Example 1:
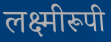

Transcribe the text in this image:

लक्ष्मीरूपी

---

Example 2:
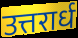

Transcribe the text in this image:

उत्तरार्ध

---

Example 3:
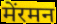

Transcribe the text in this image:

मेंरमन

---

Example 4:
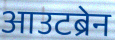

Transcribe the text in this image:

आउटब्रेन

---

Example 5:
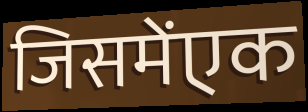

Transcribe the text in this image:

जिसमेंएक